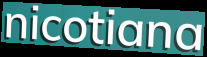
nicotiana